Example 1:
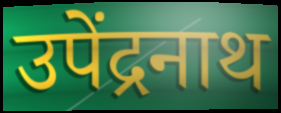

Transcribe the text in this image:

उपेंद्रनाथ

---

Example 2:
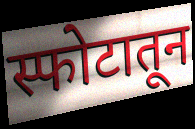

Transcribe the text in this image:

स्फोटातून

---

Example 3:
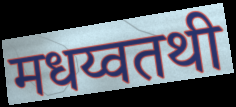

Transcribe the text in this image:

मधय्वतथी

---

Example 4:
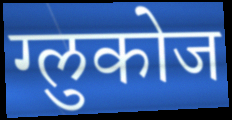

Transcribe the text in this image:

ग्लुकोज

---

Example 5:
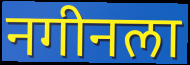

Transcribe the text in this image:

नगीनला